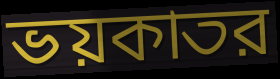
ভয়কাতর